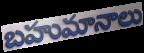
బహుమానాలు